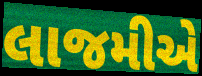
લાજમીએ